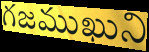
గజముఖుని